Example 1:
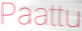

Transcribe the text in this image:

Paattu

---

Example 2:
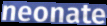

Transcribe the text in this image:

neonate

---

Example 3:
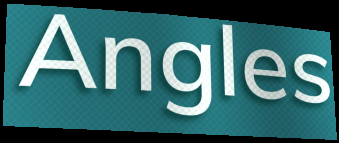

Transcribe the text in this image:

Angles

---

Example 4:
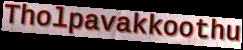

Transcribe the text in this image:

Tholpavakkoothu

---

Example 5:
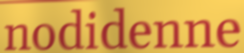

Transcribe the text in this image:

nodidenne